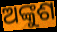
ଅଙ୍କୁଶ